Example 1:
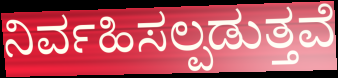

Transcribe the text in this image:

ನಿರ್ವಹಿಸಲ್ಪಡುತ್ತವೆ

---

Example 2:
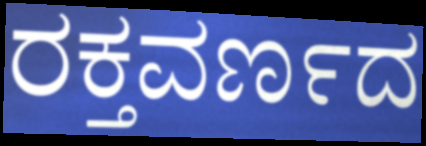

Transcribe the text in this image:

ರಕ್ತವರ್ಣದ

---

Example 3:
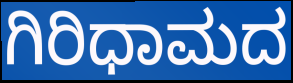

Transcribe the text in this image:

ಗಿರಿಧಾಮದ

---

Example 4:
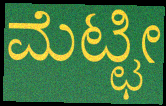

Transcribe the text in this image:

ಮೆಟ್ಟೀ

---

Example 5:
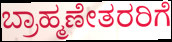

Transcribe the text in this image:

ಬ್ರಾಹ್ಮಣೇತರರಿಗೆ